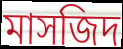
মাসজিদ